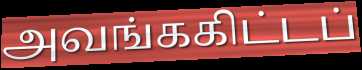
அவங்ககிட்டப்